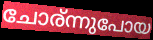
ചോര്ന്നുപോയ